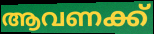
ആവണക്ക്